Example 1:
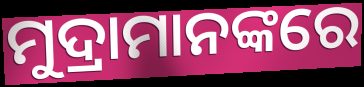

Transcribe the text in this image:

ମୁଦ୍ରାମାନଙ୍କରେ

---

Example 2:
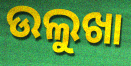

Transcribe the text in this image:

ଉଲୁଖା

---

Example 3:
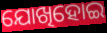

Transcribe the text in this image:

ଯୋଖିହୋଇ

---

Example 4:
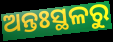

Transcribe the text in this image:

ଅନ୍ତଃସ୍ଥଳରୁ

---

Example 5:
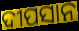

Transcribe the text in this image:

ଦୀପସାନ